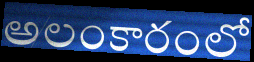
అలంకారంలో